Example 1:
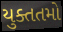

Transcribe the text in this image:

યુક્તતમો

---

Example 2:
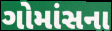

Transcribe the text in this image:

ગોમાંસના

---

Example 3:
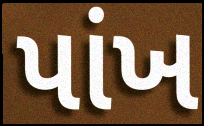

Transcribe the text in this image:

પાંખ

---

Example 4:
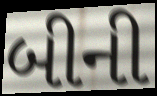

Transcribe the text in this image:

બીની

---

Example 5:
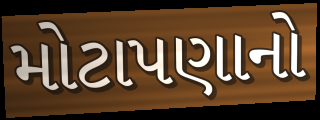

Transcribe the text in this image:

મોટાપણાનો